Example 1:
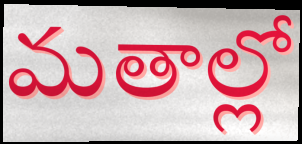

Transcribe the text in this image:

మతాల్లో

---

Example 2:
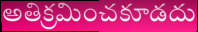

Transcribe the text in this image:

అతిక్రమించకూడదు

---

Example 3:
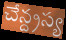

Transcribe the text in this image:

చేన్ద్రస్య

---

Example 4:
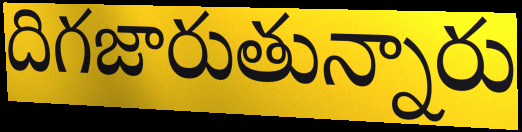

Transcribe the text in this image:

దిగజారుతున్నారు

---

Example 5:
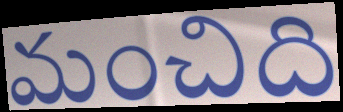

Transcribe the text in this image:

మంచిది